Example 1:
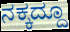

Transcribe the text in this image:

ನಕ್ಕದ್ದೂ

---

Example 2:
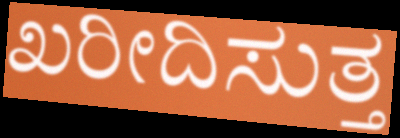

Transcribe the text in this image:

ಖರೀದಿಸುತ್ತ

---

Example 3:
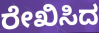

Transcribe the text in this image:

ರೇಖಿಸಿದ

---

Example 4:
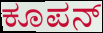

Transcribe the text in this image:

ಕೂಪನ್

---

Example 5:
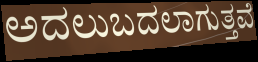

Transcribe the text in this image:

ಅದಲುಬದಲಾಗುತ್ತವೆ